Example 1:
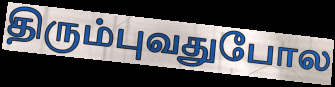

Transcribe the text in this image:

திரும்புவதுபோல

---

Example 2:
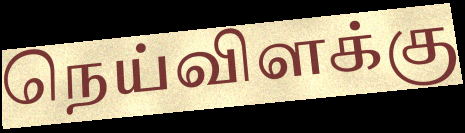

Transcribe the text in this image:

நெய்விளக்கு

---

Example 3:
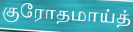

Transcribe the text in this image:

குரோதமாய்த்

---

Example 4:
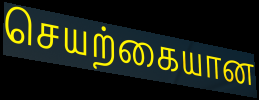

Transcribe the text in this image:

செயற்கையான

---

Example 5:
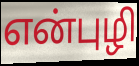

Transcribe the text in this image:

என்புழி